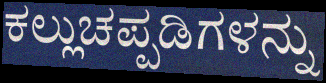
ಕಲ್ಲುಚಪ್ಪಡಿಗಳನ್ನು